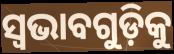
ସ୍ୱଭାବଗୁଡ଼ିକୁ